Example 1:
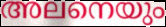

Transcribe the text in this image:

അലനെയും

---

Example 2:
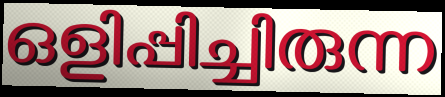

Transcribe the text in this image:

ഒളിപ്പിച്ചിരുന്ന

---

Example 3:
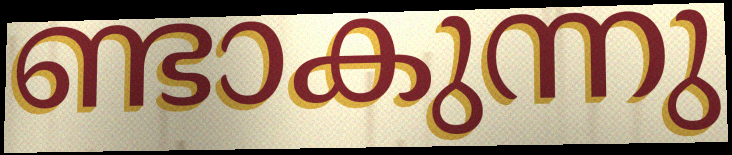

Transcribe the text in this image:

ണ്ടാകുന്നു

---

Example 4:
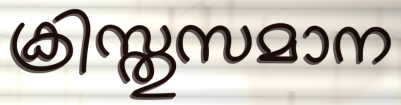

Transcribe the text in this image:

ക്രിസ്തുസമാന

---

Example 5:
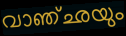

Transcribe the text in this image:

വാഞ്ഛയും